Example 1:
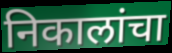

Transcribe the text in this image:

निकालांचा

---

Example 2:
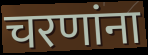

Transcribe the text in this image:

चरणांना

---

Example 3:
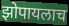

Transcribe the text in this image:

झोपायलाच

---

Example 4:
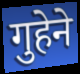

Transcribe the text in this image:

गुहेने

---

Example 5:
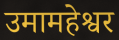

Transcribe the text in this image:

उमामहेश्वर